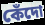
কেঁদো